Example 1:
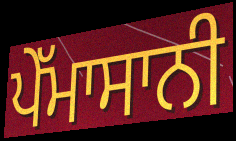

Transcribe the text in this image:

ਪੇੱਮਾਸਾਨੀ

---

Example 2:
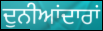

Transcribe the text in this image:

ਦੁਨੀਆਂਦਾਰਾਂ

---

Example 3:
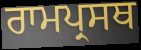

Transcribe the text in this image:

ਰਾਮਪ੍ਰਸਥ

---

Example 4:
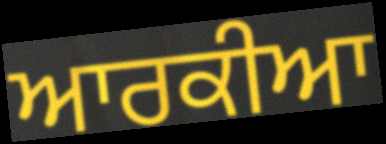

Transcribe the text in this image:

ਆਰਕੀਆ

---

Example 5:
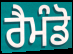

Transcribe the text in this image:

ਰੈਮੰਡੋ